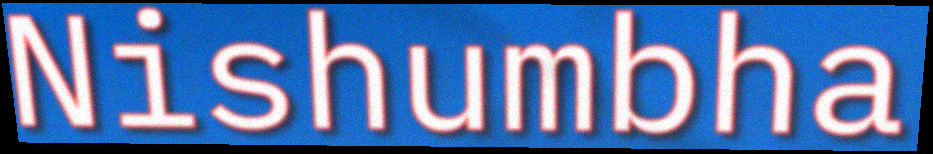
Nishumbha